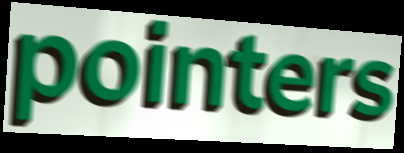
pointers